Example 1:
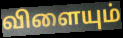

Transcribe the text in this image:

விளையும்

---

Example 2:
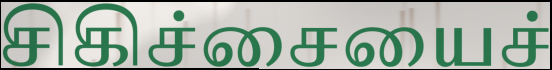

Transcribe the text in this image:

சிகிச்சையைச்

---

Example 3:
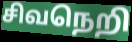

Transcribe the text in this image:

சிவநெறி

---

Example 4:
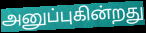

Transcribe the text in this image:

அனுப்புகின்றது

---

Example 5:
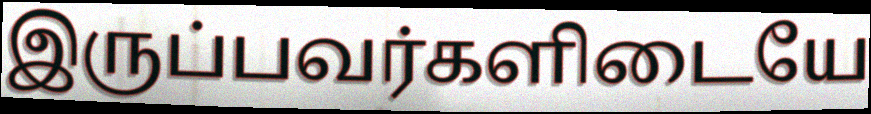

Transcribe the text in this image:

இருப்பவர்களிடையே